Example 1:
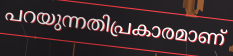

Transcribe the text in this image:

പറയുന്നതിപ്രകാരമാണ്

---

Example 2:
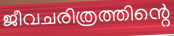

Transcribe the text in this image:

ജീവചരിത്രത്തിന്റെ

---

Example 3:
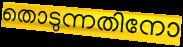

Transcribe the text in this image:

തൊടുന്നതിനോ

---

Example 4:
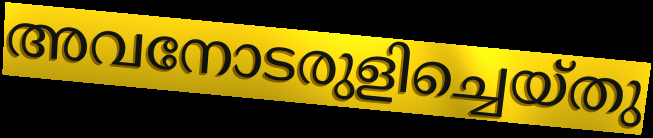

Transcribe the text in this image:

അവനോടരുളിച്ചെയ്തു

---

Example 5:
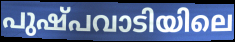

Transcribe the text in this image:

പുഷ്പവാടിയിലെ